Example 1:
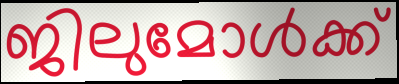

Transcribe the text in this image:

ജിലുമോൾക്ക്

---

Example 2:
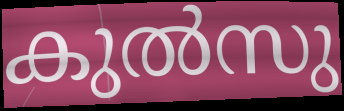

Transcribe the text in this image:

കുൽസു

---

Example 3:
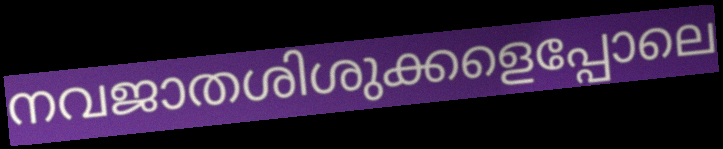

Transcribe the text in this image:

നവജാതശിശുക്കളെപ്പോലെ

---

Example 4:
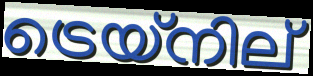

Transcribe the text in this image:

ട്രെയ്നില്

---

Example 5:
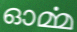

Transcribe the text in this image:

ഓൎമ്മ